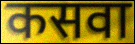
कसवा